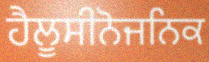
ਹੈਲੂਸੀਨੋਜਨਿਕ